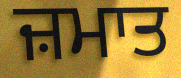
ਜ਼ਮਾਤ